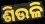
ଶିଉଳି